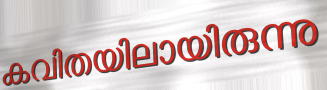
കവിതയിലായിരുന്നു